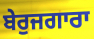
ਬੇਰੁਜਗਾਰਾ